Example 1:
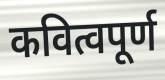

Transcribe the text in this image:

कवित्वपूर्ण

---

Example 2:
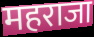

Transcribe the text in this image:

महराजा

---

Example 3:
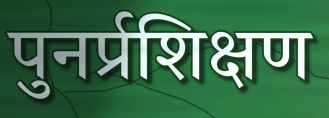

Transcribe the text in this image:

पुनर्प्रशिक्षण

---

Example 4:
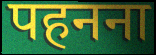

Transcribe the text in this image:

पहनना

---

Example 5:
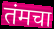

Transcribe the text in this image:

तंमचा